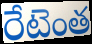
రేటెంత